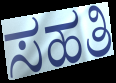
ಸಹತಿ